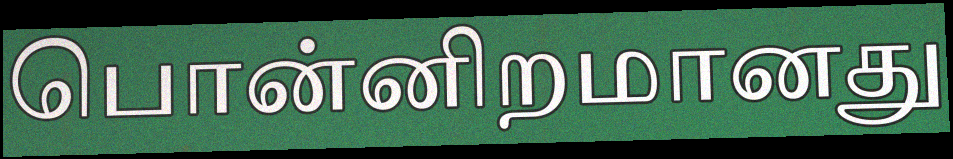
பொன்னிறமானது